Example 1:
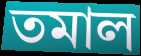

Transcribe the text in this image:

তমাল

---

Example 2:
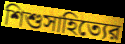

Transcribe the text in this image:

শিশুসাহিত্যের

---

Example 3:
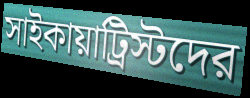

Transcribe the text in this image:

সাইকায়াট্রিস্টদের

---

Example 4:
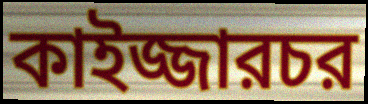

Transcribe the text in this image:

কাইজ্জারচর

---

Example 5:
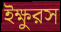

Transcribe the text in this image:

ইক্ষুরস